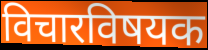
विचारविषयक